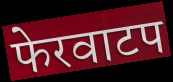
फेरवाटप